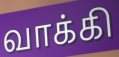
வாக்கி